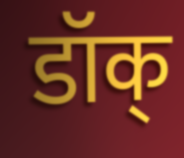
डॉक्